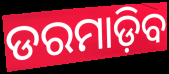
ଡରମାଡ଼ିବ